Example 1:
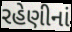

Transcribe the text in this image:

રહેણીનાં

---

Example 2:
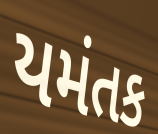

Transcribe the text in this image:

યમંતક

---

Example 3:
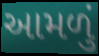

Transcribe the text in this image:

આમળું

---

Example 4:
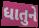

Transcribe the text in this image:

ધાતુને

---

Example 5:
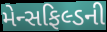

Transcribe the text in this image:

મેન્સફિલ્ડની